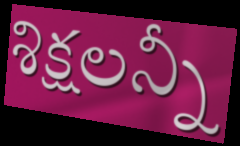
శిక్షలన్నీ